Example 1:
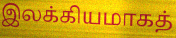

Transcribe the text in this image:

இலக்கியமாகத்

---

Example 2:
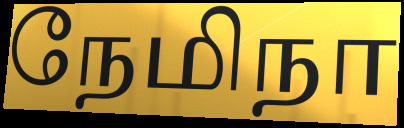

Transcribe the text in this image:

நேமிநா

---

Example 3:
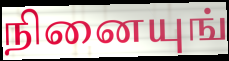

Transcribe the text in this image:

நினையுங்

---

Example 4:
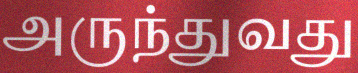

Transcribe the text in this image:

அருந்துவது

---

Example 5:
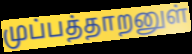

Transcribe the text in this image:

முப்பத்தாறனுள்